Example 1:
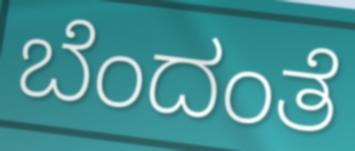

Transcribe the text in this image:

ಬೆಂದಂತೆ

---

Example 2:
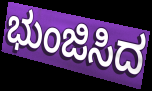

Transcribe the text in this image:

ಭುಂಜಿಸಿದ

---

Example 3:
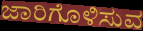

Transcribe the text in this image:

ಜಾರಿಗೊಳಿಸುವ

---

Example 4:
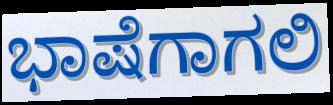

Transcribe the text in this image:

ಭಾಷೆಗಾಗಲಿ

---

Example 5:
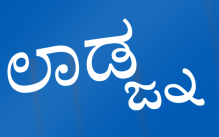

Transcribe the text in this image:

ಲಾಡ್ಜ್ನ